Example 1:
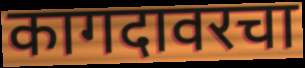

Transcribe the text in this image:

कागदावरचा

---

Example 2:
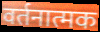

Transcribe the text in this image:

वर्तनात्मक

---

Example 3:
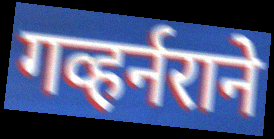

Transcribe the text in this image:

गव्हर्नराने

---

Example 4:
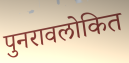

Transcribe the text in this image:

पुनरावलोकित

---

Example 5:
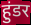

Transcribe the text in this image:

हुंडर